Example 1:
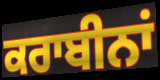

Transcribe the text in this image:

ਕਰਾਬੀਨਾਂ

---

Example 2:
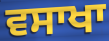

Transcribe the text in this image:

ਵਸਾਖਾ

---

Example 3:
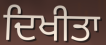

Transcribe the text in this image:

ਦਿਖੀਤਾ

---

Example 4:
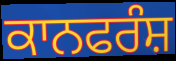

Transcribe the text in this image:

ਕਾਨਫਰੰਸ਼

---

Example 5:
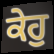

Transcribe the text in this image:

ਕੇਹੁ